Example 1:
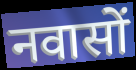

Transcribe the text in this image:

नवासों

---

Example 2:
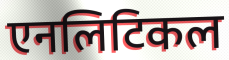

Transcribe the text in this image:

एनलिटिकल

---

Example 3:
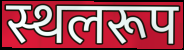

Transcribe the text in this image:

स्थलरूप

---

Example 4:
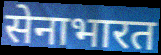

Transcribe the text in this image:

सेनाभारत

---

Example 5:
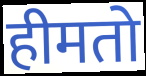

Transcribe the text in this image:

हीमतो